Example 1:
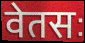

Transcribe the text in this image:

वेतसः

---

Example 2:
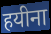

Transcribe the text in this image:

हयीना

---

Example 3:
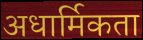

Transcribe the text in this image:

अधार्मिकता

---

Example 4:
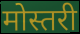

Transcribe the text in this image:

मोस्तरी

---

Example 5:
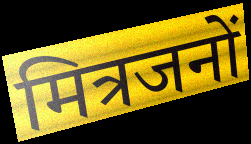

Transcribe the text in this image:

मित्रजनों